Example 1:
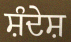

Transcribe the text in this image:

ਸ਼ੰਦੇਸ਼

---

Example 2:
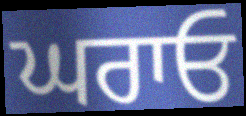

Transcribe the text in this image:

ਘਰਾਓ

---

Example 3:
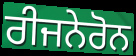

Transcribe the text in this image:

ਰੀਜਨੇਰੋਨ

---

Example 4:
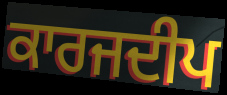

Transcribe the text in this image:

ਕਾਰਜਦੀਪ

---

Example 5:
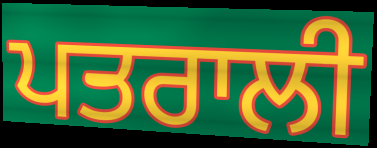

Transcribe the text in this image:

ਪਤਰਾਲੀ